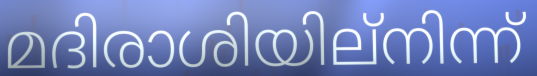
മദിരാശിയില്നിന്ന്